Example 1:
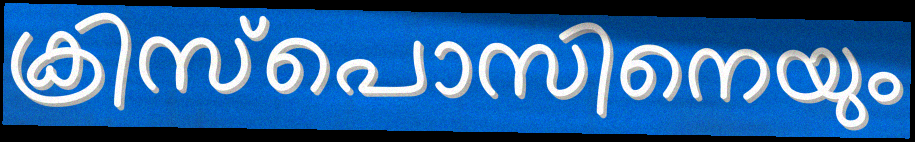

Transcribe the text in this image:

ക്രിസ്പൊസിനെയും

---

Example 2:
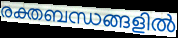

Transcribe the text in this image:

രക്തബന്ധങ്ങളിൽ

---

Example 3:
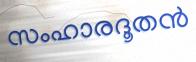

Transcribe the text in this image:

സംഹാരദൂതൻ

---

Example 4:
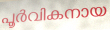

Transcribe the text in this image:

പൂർവികനായ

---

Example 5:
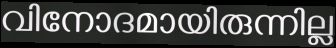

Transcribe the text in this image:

വിനോദമായിരുന്നില്ല